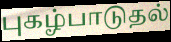
புகழ்பாடுதல்